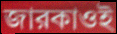
জারকাওই